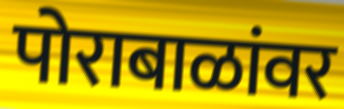
पोराबाळांवर